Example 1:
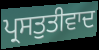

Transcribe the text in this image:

ਪ੍ਰਸਤੁਤੀਵਾਦ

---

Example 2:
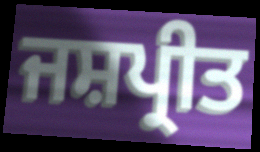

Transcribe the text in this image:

ਜਸ਼ਪ੍ਰੀਤ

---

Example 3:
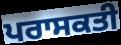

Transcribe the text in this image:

ਪਰਾਸਕਤੀ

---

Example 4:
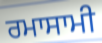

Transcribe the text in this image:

ਰਮਾਸਾਮੀ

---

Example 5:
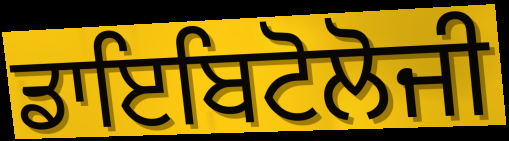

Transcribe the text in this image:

ਡਾਇਬਿਟੋਲੋਜੀ